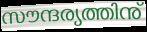
സൗന്ദര്യത്തിനു്